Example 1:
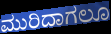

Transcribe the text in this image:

ಮುರಿದಾಗಲೂ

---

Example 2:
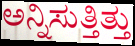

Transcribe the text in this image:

ಅನ್ನಿಸುತ್ತಿತ್ತು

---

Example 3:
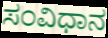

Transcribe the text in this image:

ಸಂವಿಧಾನ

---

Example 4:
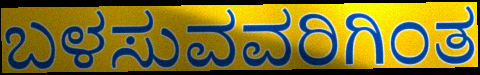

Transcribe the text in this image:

ಬಳಸುವವರಿಗಿಂತ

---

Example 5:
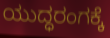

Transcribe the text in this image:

ಯುದ್ಧರಂಗಕ್ಕೆ